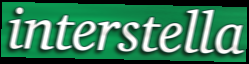
interstella